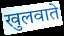
खुलवाते